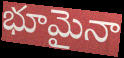
భూమైనా